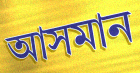
আসমান